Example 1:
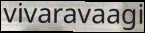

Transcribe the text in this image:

vivaravaagi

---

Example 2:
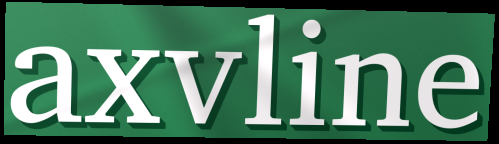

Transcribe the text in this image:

axvline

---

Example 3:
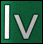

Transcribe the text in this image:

Iv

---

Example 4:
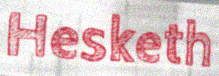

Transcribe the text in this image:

Hesketh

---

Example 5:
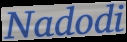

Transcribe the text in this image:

Nadodi